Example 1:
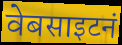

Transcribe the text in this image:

वेबसाइटनं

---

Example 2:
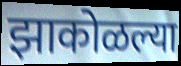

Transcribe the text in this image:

झाकोळल्या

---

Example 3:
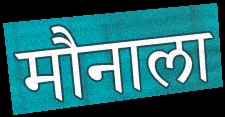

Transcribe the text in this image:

मौनाला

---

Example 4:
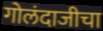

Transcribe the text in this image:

गोलंदाजीचा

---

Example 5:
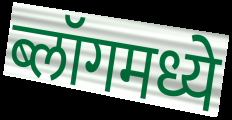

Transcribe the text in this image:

ब्लॉगमध्ये